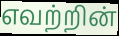
எவற்றின்